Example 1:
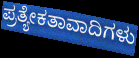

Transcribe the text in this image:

ಪ್ರತ್ಯೇಕತಾವಾದಿಗಳು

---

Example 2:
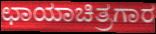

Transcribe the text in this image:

ಛಾಯಾಚಿತ್ರಗಾರ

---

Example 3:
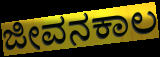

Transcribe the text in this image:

ಜೀವನಕಾಲ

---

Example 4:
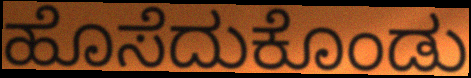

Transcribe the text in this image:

ಹೊಸೆದುಕೊಂಡು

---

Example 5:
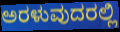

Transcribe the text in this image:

ಅರಳುವುದರಲ್ಲಿ